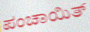
ಪಂಚಾಯಿತ್